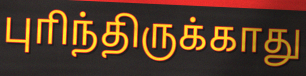
புரிந்திருக்காது